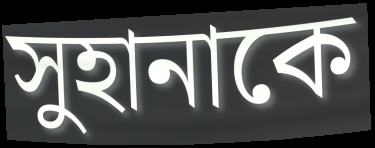
সুহানাকে